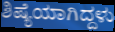
ಶಿಷ್ಯೆಯಾಗಿದ್ದಳು